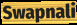
Swapnali